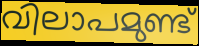
വിലാപമുണ്ട്